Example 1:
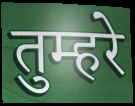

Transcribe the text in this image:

तुम्हरे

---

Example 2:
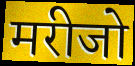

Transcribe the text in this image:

मरीजो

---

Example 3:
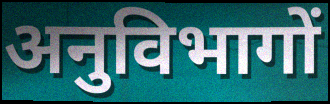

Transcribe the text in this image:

अनुविभागों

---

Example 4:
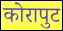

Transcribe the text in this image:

कोरापुट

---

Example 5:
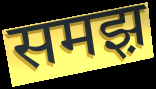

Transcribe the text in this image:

समझ़